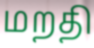
மறதி